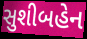
સુશીબહેન